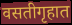
वसतीगृहात